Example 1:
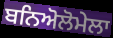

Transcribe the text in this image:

ਬਨਿਅੋਲੋਮੇਲਾ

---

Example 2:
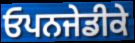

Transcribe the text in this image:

ਓਪਨਜੇਡੀਕੇ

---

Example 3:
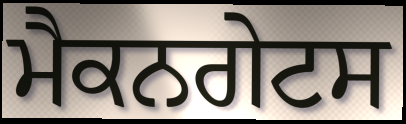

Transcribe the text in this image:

ਮੈਕਨਗੇਟਸ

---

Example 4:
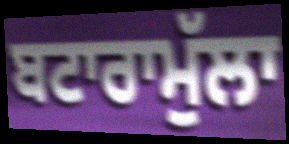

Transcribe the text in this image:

ਬਟਾਰਾਮੁੱਲਾ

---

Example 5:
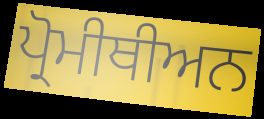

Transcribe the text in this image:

ਪ੍ਰੋਮੀਥੀਅਨ